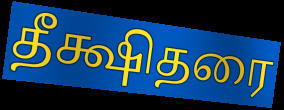
தீக்ஷிதரை